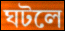
ঘটলে